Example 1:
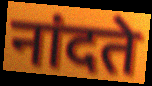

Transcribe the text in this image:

नांदते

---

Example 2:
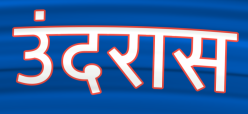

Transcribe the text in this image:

उंदरास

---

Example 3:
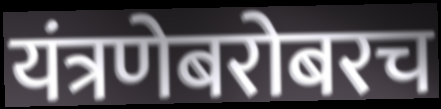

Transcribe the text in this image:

यंत्रणेबरोबरच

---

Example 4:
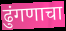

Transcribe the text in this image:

ढुंगणाचा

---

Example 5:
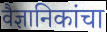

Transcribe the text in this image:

वैज्ञानिकांचा